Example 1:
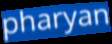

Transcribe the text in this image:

pharyan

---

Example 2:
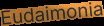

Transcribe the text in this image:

Eudaimonia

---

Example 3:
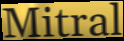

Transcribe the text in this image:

Mitral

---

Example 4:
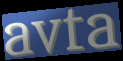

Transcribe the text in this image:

avta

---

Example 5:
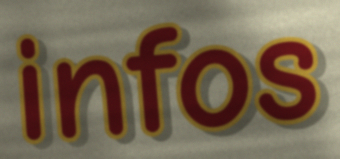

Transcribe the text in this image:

infos